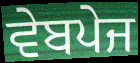
ਵੇਬਪੇਜ